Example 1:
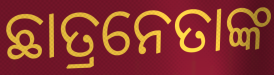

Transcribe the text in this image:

ଛାତ୍ରନେତାଙ୍କ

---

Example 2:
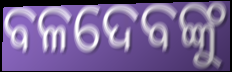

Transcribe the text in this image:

ବଳଦେବଙ୍କୁ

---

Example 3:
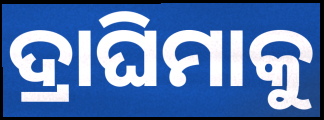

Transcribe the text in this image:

ଦ୍ରାଘିମାକୁ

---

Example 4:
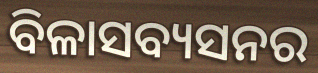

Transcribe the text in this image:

ବିଳାସବ୍ୟସନର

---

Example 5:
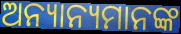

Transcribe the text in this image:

ଅନ୍ୟାନ୍ୟମାନଙ୍କ